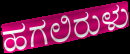
ಹಗಲಿರುಳು